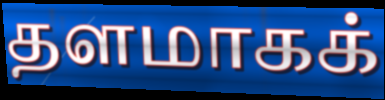
தளமாகக்